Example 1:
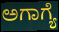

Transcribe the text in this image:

ಅಗಾಗ್ಯೆ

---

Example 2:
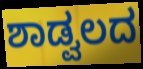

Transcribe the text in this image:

ಶಾಡ್ವಲದ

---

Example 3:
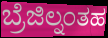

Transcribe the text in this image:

ಬ್ರೆಜಿಲ್ನಂತಹ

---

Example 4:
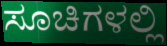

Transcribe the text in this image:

ಸೂಚಿಗಳಲ್ಲಿ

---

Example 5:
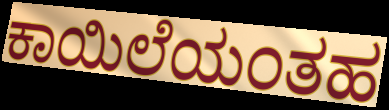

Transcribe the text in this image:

ಕಾಯಿಲೆಯಂತಹ